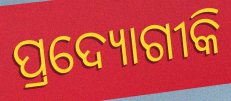
ପ୍ରଦ୍ୟୋଗୀକି